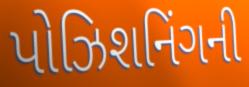
પોઝિશનિંગની